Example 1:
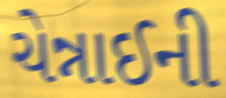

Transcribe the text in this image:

ચેન્નાઈની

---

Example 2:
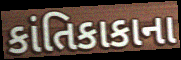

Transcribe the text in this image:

કાંતિકાકાના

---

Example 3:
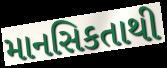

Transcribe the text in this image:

માનસિકતાથી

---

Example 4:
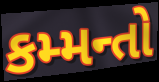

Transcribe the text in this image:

કમ્મન્તો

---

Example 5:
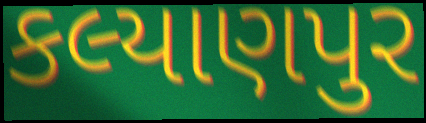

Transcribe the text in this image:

કલ્યાણપુર